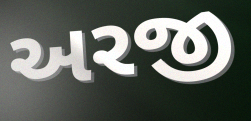
અરજી